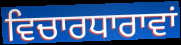
ਵਿਚਾਰਧਾਰਾਵਾਂ